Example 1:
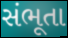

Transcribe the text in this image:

સંભૂતા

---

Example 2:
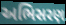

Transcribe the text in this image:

અભિસરણ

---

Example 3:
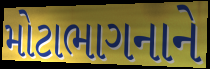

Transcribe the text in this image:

મોટાભાગનાને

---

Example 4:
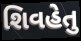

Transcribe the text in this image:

શિવહેતુ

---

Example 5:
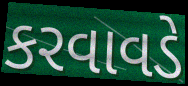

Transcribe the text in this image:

કરવાવડે